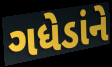
ગધેડાંને